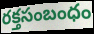
రక్తసంబంధం